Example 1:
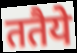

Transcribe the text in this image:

ततैये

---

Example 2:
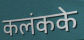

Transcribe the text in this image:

कलंकके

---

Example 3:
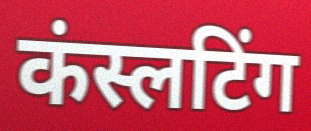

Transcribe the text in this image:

कंस्लटिंग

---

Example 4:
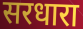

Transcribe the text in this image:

सरधारा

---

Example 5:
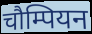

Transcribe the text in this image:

चौम्पियन